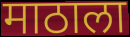
माठाला